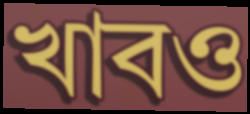
খাবও